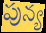
పున్య